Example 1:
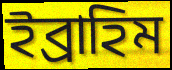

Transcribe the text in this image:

ইব্ৰাহিম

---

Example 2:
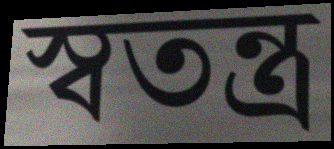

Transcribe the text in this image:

স্বতন্ত্ৰ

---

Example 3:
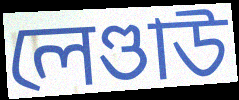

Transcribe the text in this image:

লেণ্ডাউ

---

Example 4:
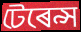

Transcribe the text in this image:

টেৰেন্স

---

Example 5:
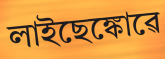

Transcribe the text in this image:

লাইছেঙ্কোৱে